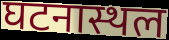
घटनास्थल